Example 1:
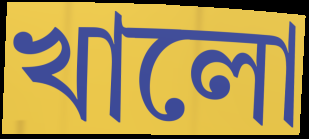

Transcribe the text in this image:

খালো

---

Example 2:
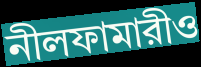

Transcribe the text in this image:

নীলফামারীও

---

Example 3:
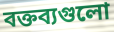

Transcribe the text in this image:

বক্তব্যগুলো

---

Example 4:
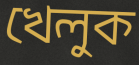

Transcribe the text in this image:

খেলুক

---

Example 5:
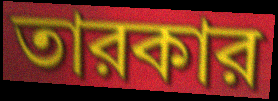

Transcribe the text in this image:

তারকার